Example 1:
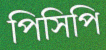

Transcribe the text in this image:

পিসিপি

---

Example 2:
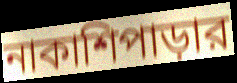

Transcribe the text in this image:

নাকাশিপাড়ার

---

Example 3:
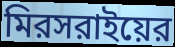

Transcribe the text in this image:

মিরসরাইয়ের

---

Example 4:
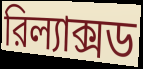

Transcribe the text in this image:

রিল্যাক্সড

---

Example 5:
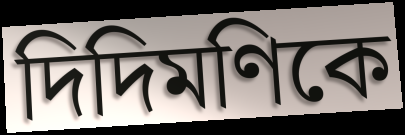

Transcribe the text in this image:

দিদিমণিকে